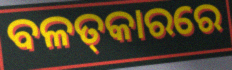
ବଳତ୍‌କାରରେ